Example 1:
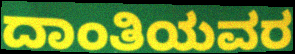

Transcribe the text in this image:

ದಾಂತಿಯವರ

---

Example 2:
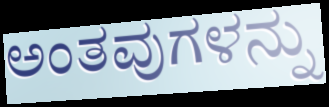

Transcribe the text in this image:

ಅಂತವುಗಳನ್ನು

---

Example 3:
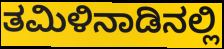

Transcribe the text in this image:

ತಮಿಳಿನಾಡಿನಲ್ಲಿ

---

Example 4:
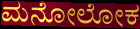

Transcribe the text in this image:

ಮನೋಲೋಕ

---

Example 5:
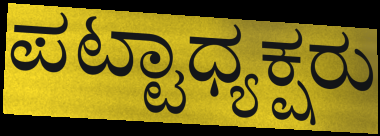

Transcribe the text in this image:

ಪಟ್ಟಾಧ್ಯಕ್ಷರು